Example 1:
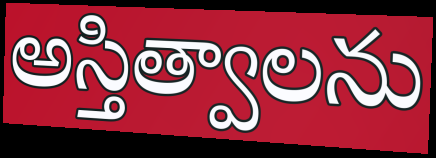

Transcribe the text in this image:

అస్తిత్వాలను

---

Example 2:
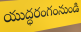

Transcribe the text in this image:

యుద్ధరంగంనుండి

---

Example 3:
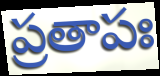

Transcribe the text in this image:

ప్రతాపః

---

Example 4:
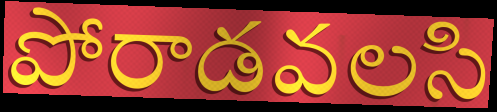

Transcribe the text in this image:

పోరాడవలసి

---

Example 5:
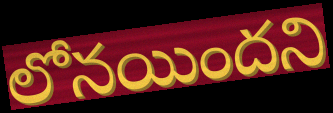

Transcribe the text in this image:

లోనయిందని